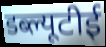
डब्ल्यूटीई